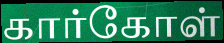
கார்கோள்